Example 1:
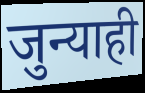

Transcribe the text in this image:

जुन्याही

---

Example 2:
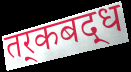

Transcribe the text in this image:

तर्कबद्ध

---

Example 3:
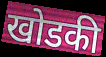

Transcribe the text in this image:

खोडकी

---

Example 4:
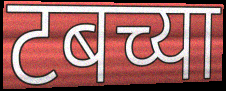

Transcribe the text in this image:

टबच्या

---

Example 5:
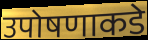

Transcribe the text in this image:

उपोषणाकडे